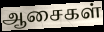
ஆசைகள்